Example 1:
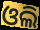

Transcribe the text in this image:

ଓଲି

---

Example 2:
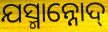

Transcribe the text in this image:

ଯସ୍ମାନ୍ନୋଦ୍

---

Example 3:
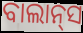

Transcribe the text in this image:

ବାଲାନ୍‌ସ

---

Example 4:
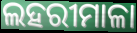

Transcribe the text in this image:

ଲହରୀମାଳା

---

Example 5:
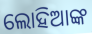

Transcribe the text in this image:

ଲୋହିଆଙ୍କ